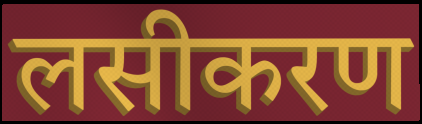
लसीकरण